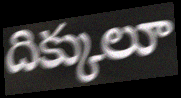
దిక్కులూ